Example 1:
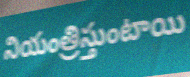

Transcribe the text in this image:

నియంత్రిస్తుంటాయి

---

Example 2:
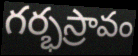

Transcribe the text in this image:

గర్భస్రావం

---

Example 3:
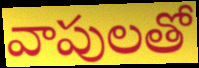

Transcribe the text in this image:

వాపులతో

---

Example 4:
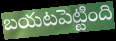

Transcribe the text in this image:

బయటపెట్టింది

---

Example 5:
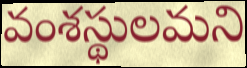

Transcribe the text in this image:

వంశస్థులమని